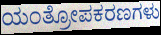
ಯಂತ್ರೋಪಕರಣಗಳು